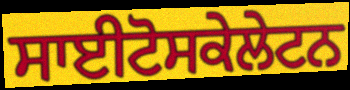
ਸਾਈਟੋਸਕੇਲੇਟਨ